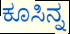
ಕೂಸಿನ್ನ